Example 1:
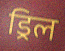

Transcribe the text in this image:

ड्रिल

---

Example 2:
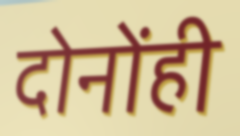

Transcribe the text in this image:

दोनोंही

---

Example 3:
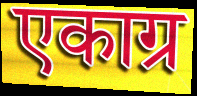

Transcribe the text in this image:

एकाग्र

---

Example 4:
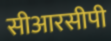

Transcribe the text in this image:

सीआरसीपी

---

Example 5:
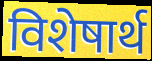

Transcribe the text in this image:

विशेषार्थ